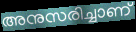
അനുസരിച്ചാണ്